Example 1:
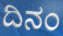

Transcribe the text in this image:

ದಿನಂ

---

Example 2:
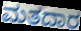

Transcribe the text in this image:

ಮತದಾರ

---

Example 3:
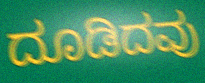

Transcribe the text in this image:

ದೂಡಿದವು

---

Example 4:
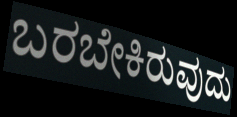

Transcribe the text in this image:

ಬರಬೇಕಿರುವುದು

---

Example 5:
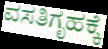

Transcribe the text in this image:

ವಸತಿಗೃಹಕ್ಕೆ